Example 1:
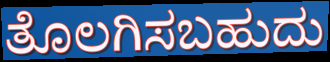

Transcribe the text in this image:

ತೊಲಗಿಸಬಹುದು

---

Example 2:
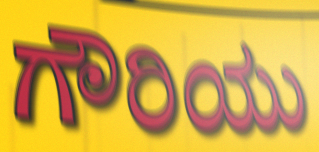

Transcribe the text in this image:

ಗೌರಿಯು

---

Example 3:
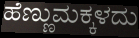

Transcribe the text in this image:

ಹೆಣ್ಣುಮಕ್ಕಳದು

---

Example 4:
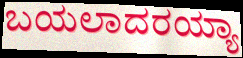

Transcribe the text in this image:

ಬಯಲಾದರಯ್ಯಾ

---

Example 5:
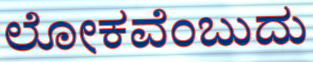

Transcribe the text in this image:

ಲೋಕವೆಂಬುದು